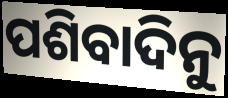
ପଶିବାଦିନୁ